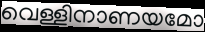
വെള്ളിനാണയമോ